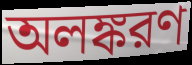
অলঙ্করণ